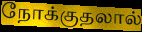
நோக்குதலால்